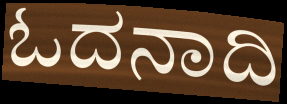
ಓದನಾದಿ